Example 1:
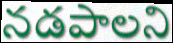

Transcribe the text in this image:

నడపాలని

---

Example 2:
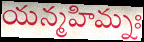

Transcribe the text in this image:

యన్మహిమ్నః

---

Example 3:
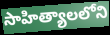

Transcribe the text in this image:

సాహిత్యాలలోని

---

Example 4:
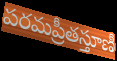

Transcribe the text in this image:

పరమప్రీతస్తూణీ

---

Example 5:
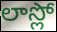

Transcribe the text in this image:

లాస్లో